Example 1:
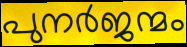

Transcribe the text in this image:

പുനർജന്മം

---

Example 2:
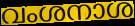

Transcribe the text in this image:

വംശനാശ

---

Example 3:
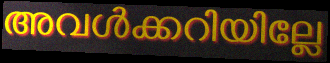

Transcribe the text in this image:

അവൾക്കറിയില്ലേ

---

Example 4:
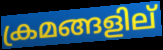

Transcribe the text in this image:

ക്രമങ്ങളില്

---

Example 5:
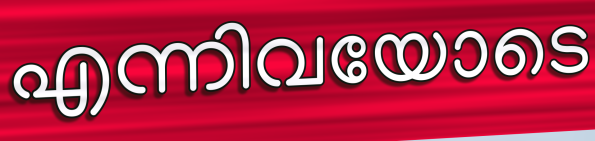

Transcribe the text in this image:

എന്നിവയോടെ